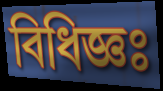
বিধিজ্ঞঃ